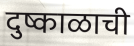
दुष्काळाची